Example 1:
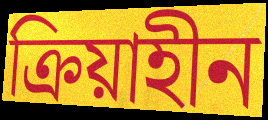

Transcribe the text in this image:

ক্রিয়াহীন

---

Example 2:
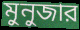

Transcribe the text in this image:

মুনুজার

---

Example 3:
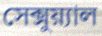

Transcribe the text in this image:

সেক্সুয়্যাল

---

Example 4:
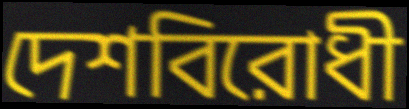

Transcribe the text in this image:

দেশবিরোধী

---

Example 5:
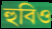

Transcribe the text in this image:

হুবিও